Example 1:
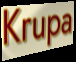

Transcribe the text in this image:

Krupa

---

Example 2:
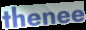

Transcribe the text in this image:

thenee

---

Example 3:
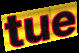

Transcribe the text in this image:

tue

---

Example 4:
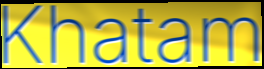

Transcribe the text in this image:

Khatam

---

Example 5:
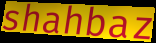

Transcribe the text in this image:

shahbaz